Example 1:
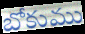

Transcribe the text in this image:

బోకుము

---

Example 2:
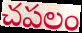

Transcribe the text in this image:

చపలం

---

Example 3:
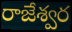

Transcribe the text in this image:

రాజేశ్వర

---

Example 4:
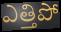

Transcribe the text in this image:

ఎత్తిపో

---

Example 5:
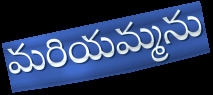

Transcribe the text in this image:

మరియమ్మను